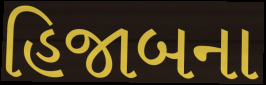
હિજાબના